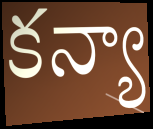
కన్యా